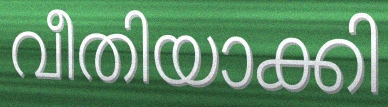
വീതിയാക്കി